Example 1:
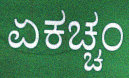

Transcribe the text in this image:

ಏಕಚ್ಚಂ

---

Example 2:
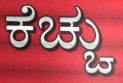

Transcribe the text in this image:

ಕೆಚ್ಚು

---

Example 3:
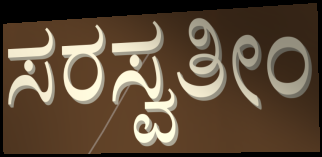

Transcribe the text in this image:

ಸರಸ್ವತೀಂ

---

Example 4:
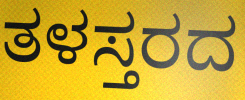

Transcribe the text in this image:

ತಳಸ್ತರದ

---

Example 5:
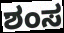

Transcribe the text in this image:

ಶಂಸ